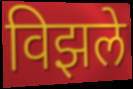
विझले